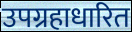
उपग्रहाधारित